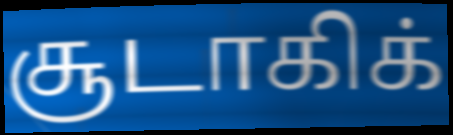
சூடாகிக்